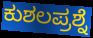
ಕುಶಲಪ್ರಶ್ನೆ